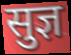
सुज्ञ